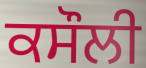
ਕਸੌਲੀ